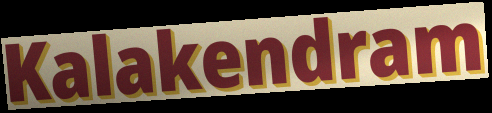
Kalakendram